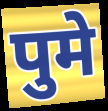
पुमे